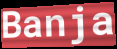
Banja